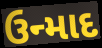
ઉન્માદ